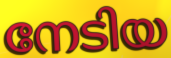
നേടിയ